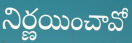
నిర్ణయించావో